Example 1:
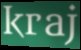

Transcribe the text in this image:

kraj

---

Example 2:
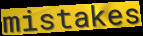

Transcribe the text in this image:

mistakes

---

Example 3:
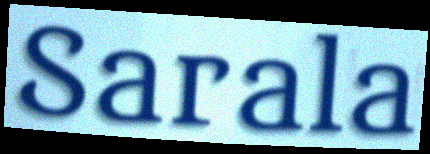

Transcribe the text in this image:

Sarala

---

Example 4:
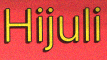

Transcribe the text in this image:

Hijuli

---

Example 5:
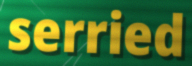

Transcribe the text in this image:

serried